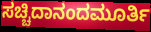
ಸಚ್ಚಿದಾನಂದಮೂರ್ತಿ